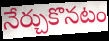
నేర్చుకొనటం